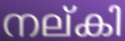
നല്‌കി